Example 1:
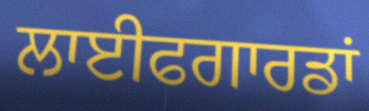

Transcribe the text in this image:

ਲਾਈਫਗਾਰਡਾਂ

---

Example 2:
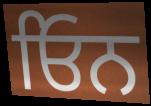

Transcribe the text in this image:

ਓਿਨ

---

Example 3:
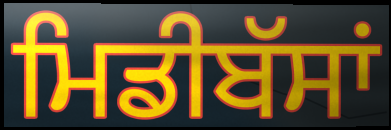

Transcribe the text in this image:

ਮਿਡੀਬੱਸਾਂ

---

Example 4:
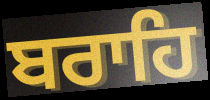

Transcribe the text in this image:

ਬਰਾਹਿ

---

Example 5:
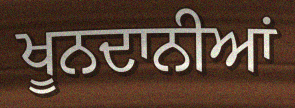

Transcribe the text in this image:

ਖੂਨਦਾਨੀਆਂ